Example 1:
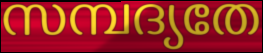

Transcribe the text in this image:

സമ്പദ്യതേ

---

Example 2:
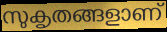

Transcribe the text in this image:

സുകൃതങ്ങളാണ്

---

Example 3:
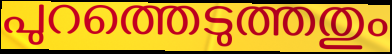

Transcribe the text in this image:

പുറത്തെടുത്തതും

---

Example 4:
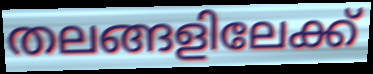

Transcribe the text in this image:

തലങ്ങളിലേക്ക്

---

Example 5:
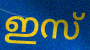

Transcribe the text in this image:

ഇസ്